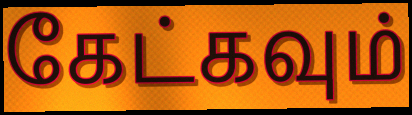
கேட்கவும்